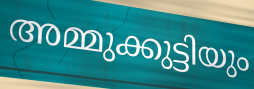
അമ്മുക്കുട്ടിയും